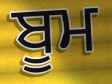
ਬੂਮ